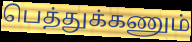
பெத்துக்கணும்